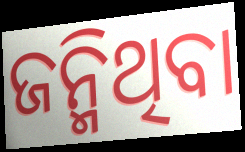
ଜନ୍ମିଥିବା